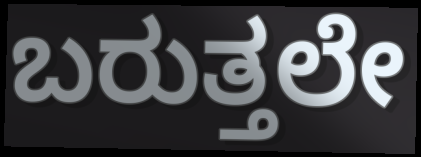
ಬರುತ್ತಲೇ